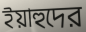
ইয়াহুদের